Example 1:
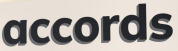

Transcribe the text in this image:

accords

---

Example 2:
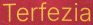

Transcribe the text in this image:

Terfezia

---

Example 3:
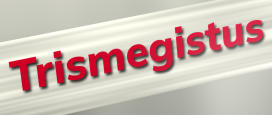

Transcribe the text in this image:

Trismegistus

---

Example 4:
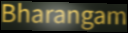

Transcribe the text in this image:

Bharangam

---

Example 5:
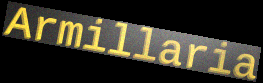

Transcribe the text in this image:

Armillaria